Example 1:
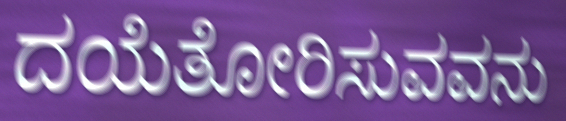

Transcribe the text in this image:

ದಯೆತೋರಿಸುವವನು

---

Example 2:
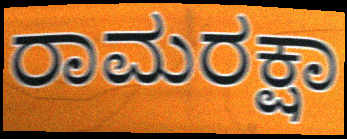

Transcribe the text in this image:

ರಾಮರಕ್ಷಾ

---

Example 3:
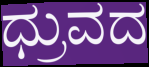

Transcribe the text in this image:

ಧ್ರುವದ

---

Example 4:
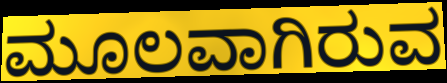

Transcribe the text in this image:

ಮೂಲವಾಗಿರುವ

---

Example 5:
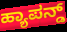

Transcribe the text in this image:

ಹ್ಯಾಪನ್ಡ್